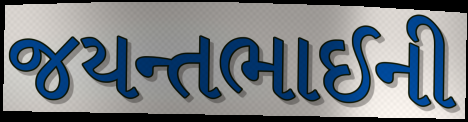
જયન્તભાઈની